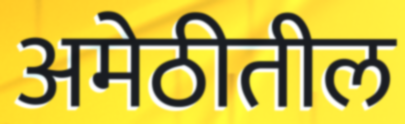
अमेठीतील